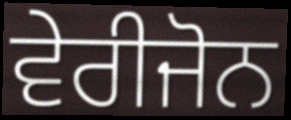
ਵੇਰੀਜੋਨ